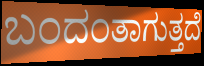
ಬಂದಂತಾಗುತ್ತದೆ